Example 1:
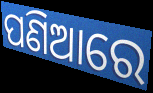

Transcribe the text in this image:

ପଣିଆରେ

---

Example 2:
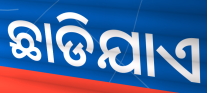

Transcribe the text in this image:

ଛାଡିଯାଏ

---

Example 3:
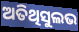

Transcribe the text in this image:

ଅତିଥିସୁଲଭ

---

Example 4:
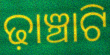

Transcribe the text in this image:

ଢ଼ାଞ୍ଚାଟି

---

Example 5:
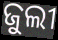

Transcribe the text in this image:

ଜୁଲୀ